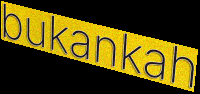
bukankah